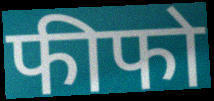
फीफो